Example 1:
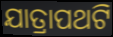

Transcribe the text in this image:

ଯାତ୍ରାପଥଟି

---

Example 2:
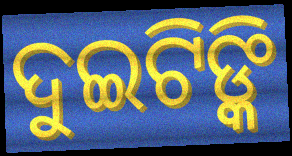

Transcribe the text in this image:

ଦୁଇଟିଙ୍କି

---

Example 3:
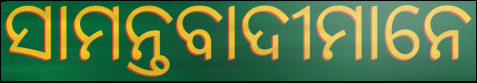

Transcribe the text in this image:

ସାମନ୍ତବାଦୀମାନେ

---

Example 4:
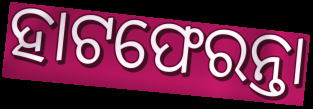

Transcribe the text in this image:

ହାଟଫେରନ୍ତା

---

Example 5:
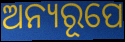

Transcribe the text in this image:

ଅନ୍ୟରୂପେ